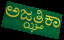
ಅಜ್ಝತ್ತಿಕಾ